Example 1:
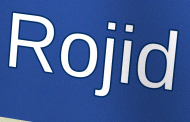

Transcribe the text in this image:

Rojid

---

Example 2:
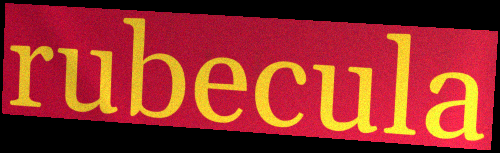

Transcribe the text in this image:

rubecula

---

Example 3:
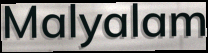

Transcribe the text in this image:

Malyalam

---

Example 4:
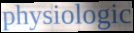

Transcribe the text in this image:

physiologic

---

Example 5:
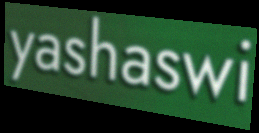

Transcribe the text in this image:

yashaswi